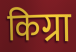
किग्रा